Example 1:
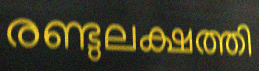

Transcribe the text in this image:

രണ്ടുലക്ഷത്തി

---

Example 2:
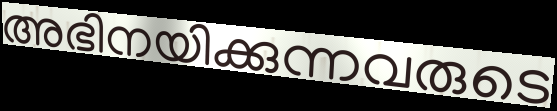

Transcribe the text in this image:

അഭിനയിക്കുന്നവരുടെ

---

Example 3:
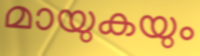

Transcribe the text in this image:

മായുകയും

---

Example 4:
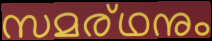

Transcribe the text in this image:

സമര്ഥനും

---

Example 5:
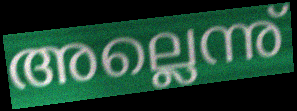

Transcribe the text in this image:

അല്ലെന്നു്